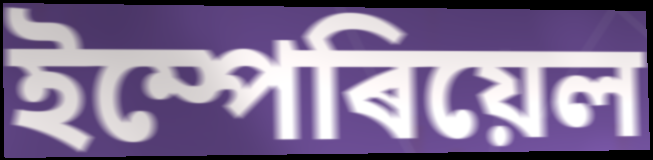
ইম্পেৰিয়েল